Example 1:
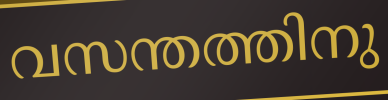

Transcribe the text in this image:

വസന്തത്തിനു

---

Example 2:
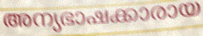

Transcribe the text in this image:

അന്യഭാഷക്കാരായ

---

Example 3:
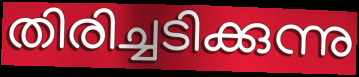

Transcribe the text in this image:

തിരിച്ചടിക്കുന്നു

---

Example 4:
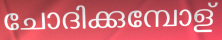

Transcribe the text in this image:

ചോദിക്കുമ്പോള്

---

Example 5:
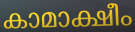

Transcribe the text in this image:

കാമാക്ഷീം